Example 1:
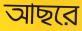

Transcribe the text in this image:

আছরে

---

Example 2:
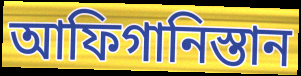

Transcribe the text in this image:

আফিগানিস্তান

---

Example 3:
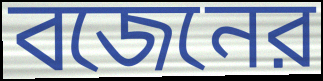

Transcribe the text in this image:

বজেনের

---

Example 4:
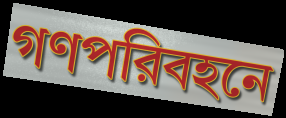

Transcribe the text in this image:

গণপরিবহনে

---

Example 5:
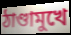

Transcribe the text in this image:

ঠাণ্ডামুখে